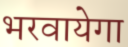
भरवायेगा